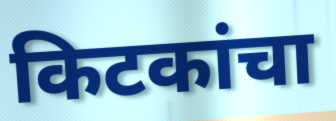
किटकांचा